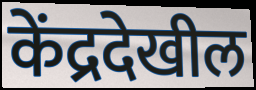
केंद्रदेखील